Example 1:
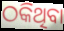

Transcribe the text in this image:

ଠକିଥିବା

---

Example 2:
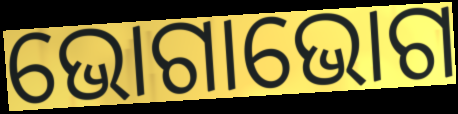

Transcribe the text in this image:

ଭୋଗାଭୋଗ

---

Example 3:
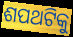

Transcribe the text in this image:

ଶପଥଟିକୁ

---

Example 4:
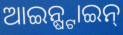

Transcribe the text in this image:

ଆଇନ୍ଷ୍ଟାଇନ୍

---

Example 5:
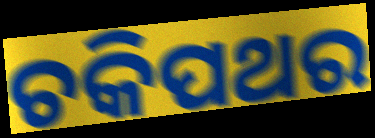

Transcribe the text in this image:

ଚକିପଥର